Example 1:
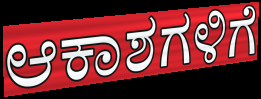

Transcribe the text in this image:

ಆಕಾಶಗಳಿಗೆ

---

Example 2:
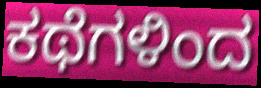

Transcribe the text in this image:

ಕಥೆಗಳಿಂದ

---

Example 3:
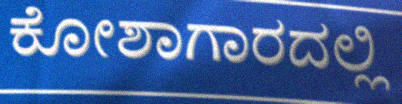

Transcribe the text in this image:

ಕೋಶಾಗಾರದಲ್ಲಿ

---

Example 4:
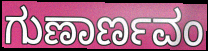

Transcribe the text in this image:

ಗುಣಾರ್ಣವಂ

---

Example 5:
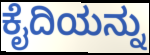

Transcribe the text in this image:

ಕೈದಿಯನ್ನು